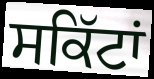
ਸਕਿੱਟਾਂ